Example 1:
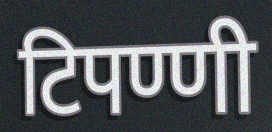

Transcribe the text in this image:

टिपण्णी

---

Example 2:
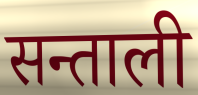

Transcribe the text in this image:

सन्ताली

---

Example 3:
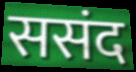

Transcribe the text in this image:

ससंद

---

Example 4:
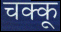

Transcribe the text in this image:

चक्कू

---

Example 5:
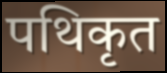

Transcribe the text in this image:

पथिकृत